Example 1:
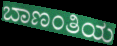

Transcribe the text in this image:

ಬಾಣಂತಿಯ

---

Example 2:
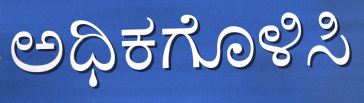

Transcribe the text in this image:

ಅಧಿಕಗೊಳಿಸಿ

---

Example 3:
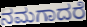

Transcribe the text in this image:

ನಮಗಾದರೆ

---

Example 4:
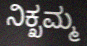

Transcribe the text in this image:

ನಿಕ್ಖಮ್ಮ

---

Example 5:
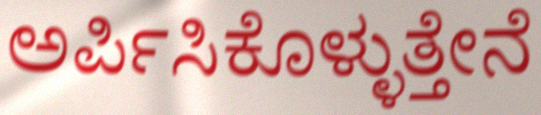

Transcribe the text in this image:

ಅರ್ಪಿಸಿಕೊಳ್ಳುತ್ತೇನೆ